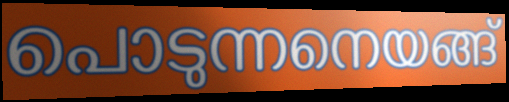
പൊടുന്നനെയങ്ങ്